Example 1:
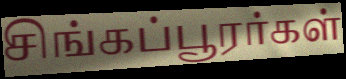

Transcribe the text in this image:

சிங்கப்பூரர்கள்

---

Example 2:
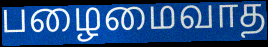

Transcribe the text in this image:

பழைமைவாத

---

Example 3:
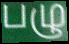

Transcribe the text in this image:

பழு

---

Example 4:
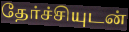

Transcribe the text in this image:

தேர்ச்சியுடன்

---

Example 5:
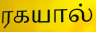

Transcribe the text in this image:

ரகயால்